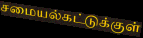
சமையல்கட்டுக்குள்